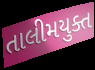
તાલીમયુક્ત